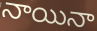
నాయినా